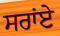
ਸਰਾਂਏ